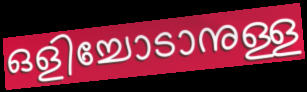
ഒളിച്ചോടാനുള്ള